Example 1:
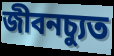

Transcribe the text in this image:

জীবনচ্যুত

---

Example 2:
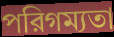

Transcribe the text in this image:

পরিগম্যতা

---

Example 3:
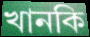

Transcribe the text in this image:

খানকি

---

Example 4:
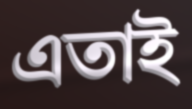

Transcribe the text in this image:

এতাই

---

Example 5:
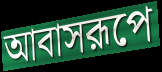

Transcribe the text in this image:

আবাসরূপে